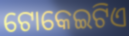
ଟୋକେଇଟିଏ